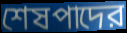
শেষপাদের